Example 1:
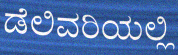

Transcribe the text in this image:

ಡೆಲಿವರಿಯಲ್ಲಿ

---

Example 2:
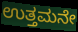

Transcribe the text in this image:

ಉತ್ತಮನೇ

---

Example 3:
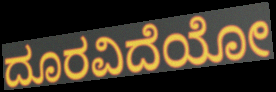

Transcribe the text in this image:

ದೂರವಿದೆಯೋ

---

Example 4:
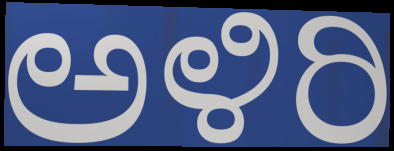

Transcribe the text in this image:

ಅಳಿರಿ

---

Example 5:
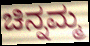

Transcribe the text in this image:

ಚಿನ್ನಮ್ಮ